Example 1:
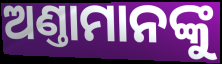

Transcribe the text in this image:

ଅଣ୍ତାମାନଙ୍କୁ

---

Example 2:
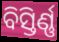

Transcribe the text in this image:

ବିସ୍ତିର୍ଣ୍ଣ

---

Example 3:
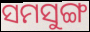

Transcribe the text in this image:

ସମସୁଙ୍ଗ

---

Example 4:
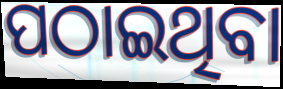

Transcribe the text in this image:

ପଠାଇଥିବା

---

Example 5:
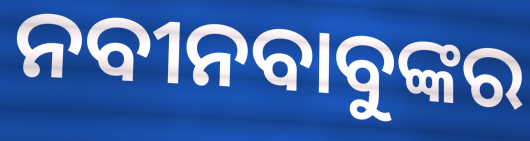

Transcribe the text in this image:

ନବୀନବାବୁଙ୍କର